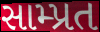
સામ્પ્રત